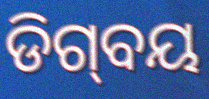
ଡିଗ୍‌ବୟ